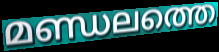
മണ്ഡലത്തെ